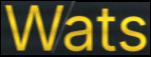
Wats